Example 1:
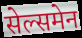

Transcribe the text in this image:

सेल्समेन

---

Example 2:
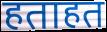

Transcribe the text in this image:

हताहत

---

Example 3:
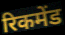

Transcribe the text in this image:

रिकमेंड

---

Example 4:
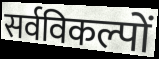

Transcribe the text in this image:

सर्वविकल्पों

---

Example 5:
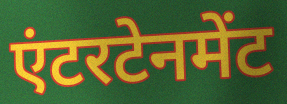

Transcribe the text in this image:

एंटरटेनमेंट